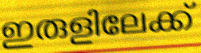
ഇരുളിലേക്ക്